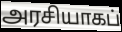
அரசியாகப்